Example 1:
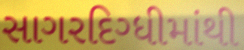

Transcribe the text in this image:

સાગરદિગ્ધીમાંથી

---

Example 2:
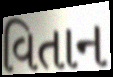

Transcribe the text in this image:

વિતાન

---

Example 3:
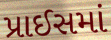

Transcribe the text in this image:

પ્રાઈસમાં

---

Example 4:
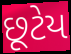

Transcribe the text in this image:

છૂટેય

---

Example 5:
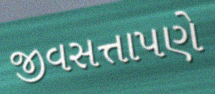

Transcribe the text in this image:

જીવસત્તાપણે